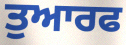
ਤੁਆਰਫ